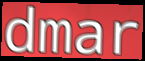
dmar